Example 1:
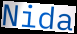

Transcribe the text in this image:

Nida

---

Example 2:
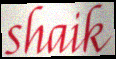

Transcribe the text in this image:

shaik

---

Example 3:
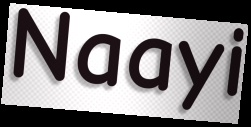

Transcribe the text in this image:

Naayi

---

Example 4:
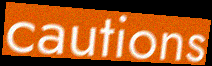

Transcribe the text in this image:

cautions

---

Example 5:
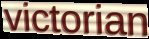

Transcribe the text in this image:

victorian